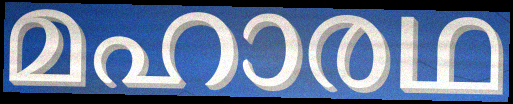
മഹാരഥ